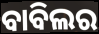
ବାବିଲର